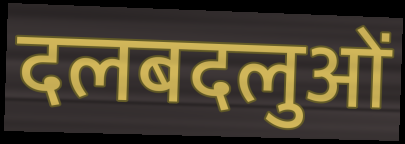
दलबदलुओं